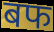
बफ